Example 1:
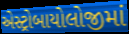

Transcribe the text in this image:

એસ્ટ્રોબાયોલોજીમાં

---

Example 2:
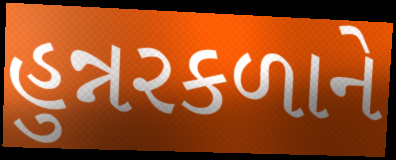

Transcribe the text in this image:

હુન્નરકળાને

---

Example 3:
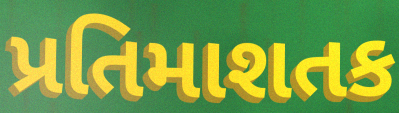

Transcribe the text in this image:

પ્રતિમાશતક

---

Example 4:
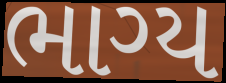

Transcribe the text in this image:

ભાગ્ય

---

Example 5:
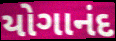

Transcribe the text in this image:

યોગાનંદ